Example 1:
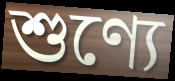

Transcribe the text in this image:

শুণ্যে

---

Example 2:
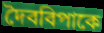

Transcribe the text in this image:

দৈববিপাকে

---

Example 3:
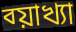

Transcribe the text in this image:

ব্য়াখ্যা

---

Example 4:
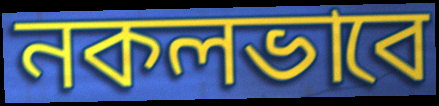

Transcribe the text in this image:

নকলভাবে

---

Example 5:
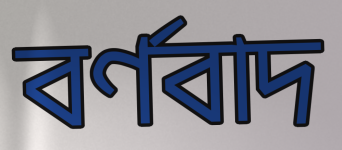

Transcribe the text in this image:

বর্ণবাদ